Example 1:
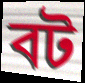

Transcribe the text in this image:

বট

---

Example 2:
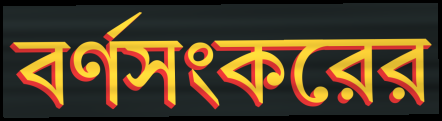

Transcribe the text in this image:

বর্ণসংকরের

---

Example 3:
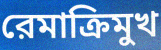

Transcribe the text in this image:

রেমাক্রিমুখ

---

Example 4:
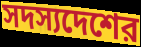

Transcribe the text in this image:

সদস্যদেশের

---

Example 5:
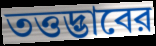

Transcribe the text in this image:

তত্তদ্ভাবের